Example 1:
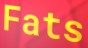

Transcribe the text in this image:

Fats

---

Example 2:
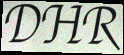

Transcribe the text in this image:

DHR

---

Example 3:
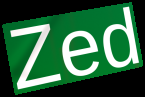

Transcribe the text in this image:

Zed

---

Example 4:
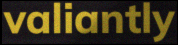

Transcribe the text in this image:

valiantly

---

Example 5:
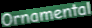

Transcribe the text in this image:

Ornamental